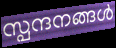
സ്പന്ദനങ്ങൾ